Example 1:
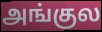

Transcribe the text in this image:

அங்குல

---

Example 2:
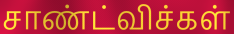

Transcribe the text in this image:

சாண்ட்விச்கள்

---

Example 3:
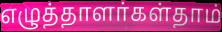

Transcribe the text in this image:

எழுத்தாளர்கள்தாம்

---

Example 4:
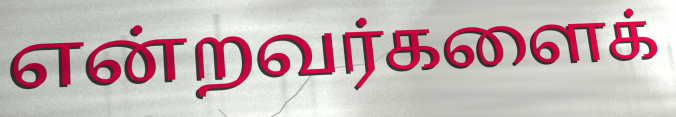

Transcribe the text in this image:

என்றவர்களைக்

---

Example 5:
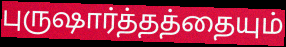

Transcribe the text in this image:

புருஷார்த்தத்தையும்